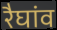
रैघांव